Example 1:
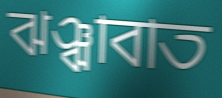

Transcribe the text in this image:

ঝঞ্ঝাবাত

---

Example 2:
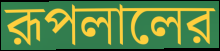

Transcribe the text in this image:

রূপলালের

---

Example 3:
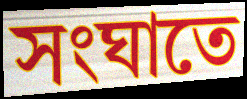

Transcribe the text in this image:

সংঘাতে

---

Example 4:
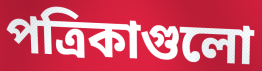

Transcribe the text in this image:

পত্রিকাগুলো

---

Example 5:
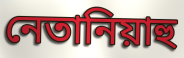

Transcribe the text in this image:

নেতানিয়াহু